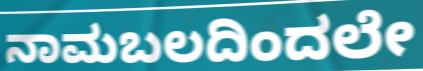
ನಾಮಬಲದಿಂದಲೇ